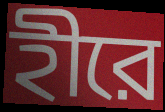
হীরে